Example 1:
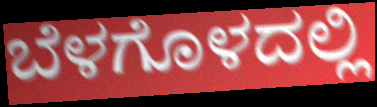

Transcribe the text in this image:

ಬೆಳಗೊಳದಲ್ಲಿ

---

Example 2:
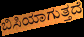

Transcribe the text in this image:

ಬಿಸಿಯಾಗುತ್ತದೆ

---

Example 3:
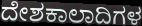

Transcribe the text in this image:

ದೇಶಕಾಲಾದಿಗಳ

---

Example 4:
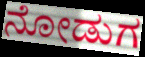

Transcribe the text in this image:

ನೋಡುಗ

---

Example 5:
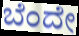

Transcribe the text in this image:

ಬೆಂದೇ